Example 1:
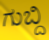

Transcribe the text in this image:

ಗುಬ್ದಿ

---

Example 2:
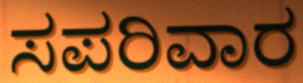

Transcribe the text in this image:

ಸಪರಿವಾರ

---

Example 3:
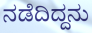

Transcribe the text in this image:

ನಡೆದಿದ್ದನು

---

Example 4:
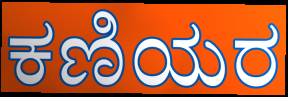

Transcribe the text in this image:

ಕಣಿಯರ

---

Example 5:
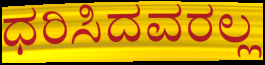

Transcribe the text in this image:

ಧರಿಸಿದವರಲ್ಲ